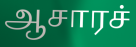
ஆசாரச்